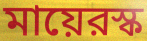
মায়েরস্ক